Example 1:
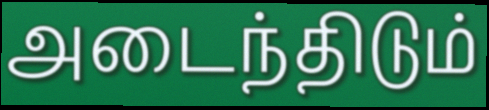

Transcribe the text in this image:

அடைந்திடும்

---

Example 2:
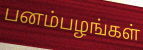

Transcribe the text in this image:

பனம்பழங்கள்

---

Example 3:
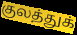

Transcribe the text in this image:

குலத்துக்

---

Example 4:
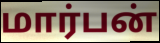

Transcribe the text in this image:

மார்பன்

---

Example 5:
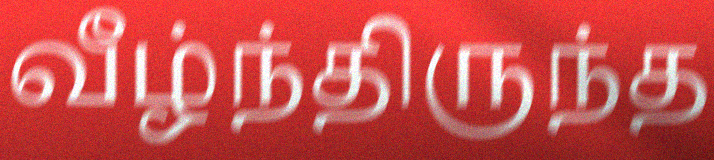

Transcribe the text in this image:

வீழ்ந்திருந்த